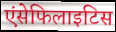
एंसेफिलाइटिस